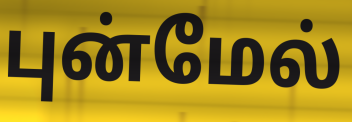
புன்மேல்